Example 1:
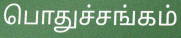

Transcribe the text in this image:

பொதுச்சங்கம்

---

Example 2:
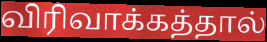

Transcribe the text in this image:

விரிவாக்கத்தால்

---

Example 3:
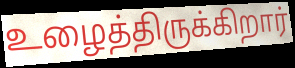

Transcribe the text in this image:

உழைத்திருக்கிறார்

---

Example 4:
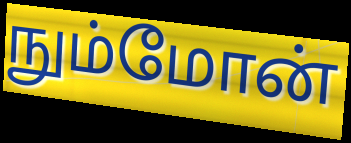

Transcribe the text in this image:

நும்மோன்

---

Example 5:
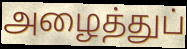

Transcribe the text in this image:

அழைத்துப்